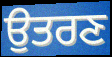
ਉਤਰਣ